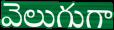
వెలుగుగా